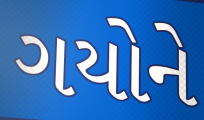
ગયોને